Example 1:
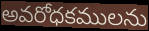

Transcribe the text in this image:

అవరోధకములను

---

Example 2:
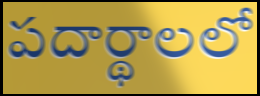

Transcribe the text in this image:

పదార్థాలలో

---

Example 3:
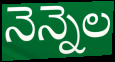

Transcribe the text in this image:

నెన్నెల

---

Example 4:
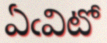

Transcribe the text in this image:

ఏఁవిటో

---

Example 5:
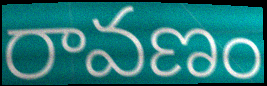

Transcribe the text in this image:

రావణం